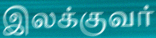
இலக்குவர்